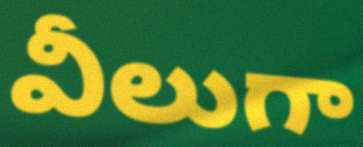
వీలుగా